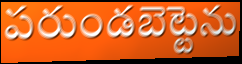
పరుండబెట్టెను